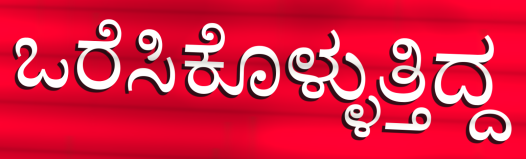
ಒರೆಸಿಕೊಳ್ಳುತ್ತಿದ್ದ